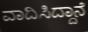
ವಾದಿಸಿದ್ದಾನೆ